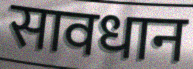
सावधान